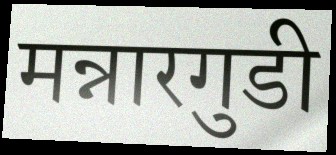
मन्नारगुडी